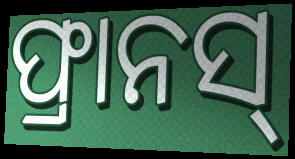
ଫ୍ରାନସ୍